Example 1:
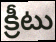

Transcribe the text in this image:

క్రీటు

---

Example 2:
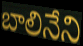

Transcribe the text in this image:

బాలినేని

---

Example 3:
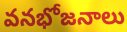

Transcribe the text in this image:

వనభోజనాలు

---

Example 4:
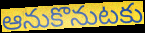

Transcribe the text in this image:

ఆనుకొనుటకు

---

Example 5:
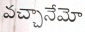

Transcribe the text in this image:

వచ్చానేమో